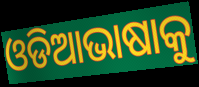
ଓଡିଆଭାଷାକୁ